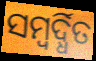
ସମ୍ବର୍ଦ୍ଧିତ